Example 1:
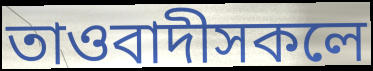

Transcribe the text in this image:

তাওবাদীসকলে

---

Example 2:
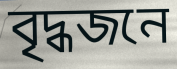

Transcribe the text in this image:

বৃদ্ধজনে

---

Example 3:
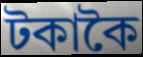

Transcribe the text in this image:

টকাকৈ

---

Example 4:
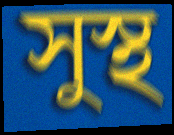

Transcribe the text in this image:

সুস্থ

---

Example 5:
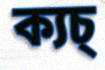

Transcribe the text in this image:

ক্যচ্